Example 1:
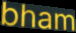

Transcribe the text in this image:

bham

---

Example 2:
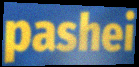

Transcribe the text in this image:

pashei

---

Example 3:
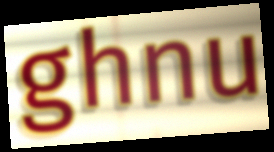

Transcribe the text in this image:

ghnu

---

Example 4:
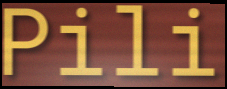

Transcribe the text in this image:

Pili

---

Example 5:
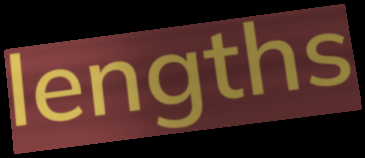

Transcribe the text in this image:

lengths